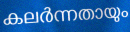
കലർന്നതായും